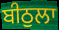
ਬੀਠੁਲਾ